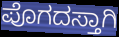
ಪೊಗದಸ್ತಾಗಿ